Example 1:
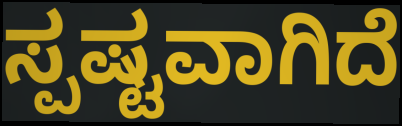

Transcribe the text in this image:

ಸ್ಪಷ್ಟವಾಗಿದೆ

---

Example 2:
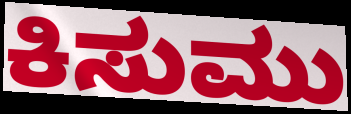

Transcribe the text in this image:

ಕಿಸುಮು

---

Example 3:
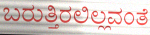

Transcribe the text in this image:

ಬರುತ್ತಿರಲಿಲ್ಲವಂತೆ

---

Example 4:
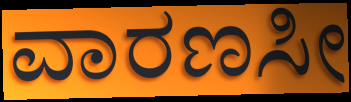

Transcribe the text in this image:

ವಾರಣಸೀ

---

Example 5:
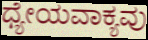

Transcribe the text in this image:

ಧ್ಯೇಯವಾಕ್ಯವು